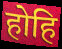
होहि